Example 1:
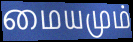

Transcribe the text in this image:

மையமும்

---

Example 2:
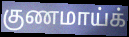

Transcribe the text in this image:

குணமாய்க்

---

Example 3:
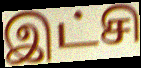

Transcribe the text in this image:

இட்சி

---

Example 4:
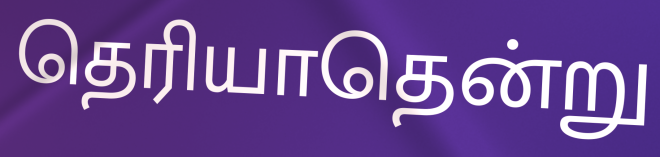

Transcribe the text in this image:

தெரியாதென்று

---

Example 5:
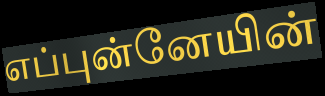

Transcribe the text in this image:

எப்புன்னேயின்